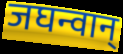
जघन्वान्